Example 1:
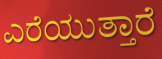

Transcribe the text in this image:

ಎರೆಯುತ್ತಾರೆ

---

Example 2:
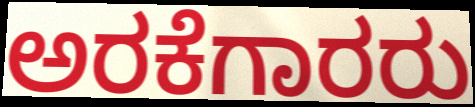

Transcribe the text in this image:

ಅರಕೆಗಾರರು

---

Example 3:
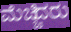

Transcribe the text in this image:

ಮೆಚ್ಚಿದರು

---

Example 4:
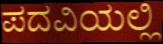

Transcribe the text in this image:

ಪದವಿಯಲ್ಲಿ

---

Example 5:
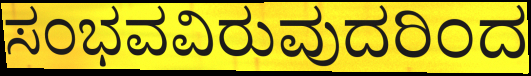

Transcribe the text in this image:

ಸಂಭವವಿರುವುದರಿಂದ